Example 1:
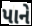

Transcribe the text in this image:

પાને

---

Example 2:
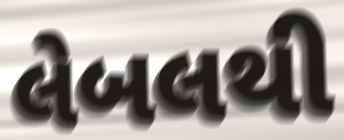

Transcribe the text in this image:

લેબલથી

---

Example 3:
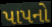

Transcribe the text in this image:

પાપનો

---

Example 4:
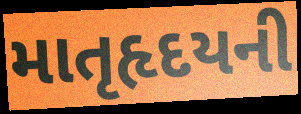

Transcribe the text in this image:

માતૃહૃદયની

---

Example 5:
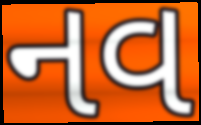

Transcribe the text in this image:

નવ